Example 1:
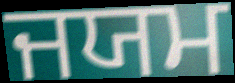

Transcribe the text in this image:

ਜਯਮ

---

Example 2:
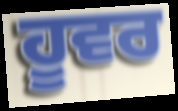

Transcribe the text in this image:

ਹੂਵਰ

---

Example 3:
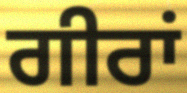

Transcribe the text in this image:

ਗੀਰਾਂ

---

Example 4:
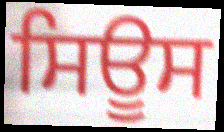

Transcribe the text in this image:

ਸਿਊਸ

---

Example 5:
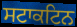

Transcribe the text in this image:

ਸਟਾਕਟਿਨ